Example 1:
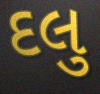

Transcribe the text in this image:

દલુ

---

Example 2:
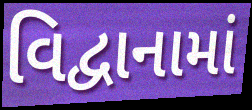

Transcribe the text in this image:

વિદ્વાનામાં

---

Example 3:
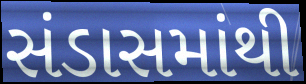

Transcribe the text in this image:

સંડાસમાંથી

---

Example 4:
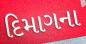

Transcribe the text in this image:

દિમાગના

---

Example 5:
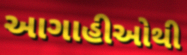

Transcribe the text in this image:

આગાહીઓથી